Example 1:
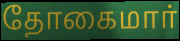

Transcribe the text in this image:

தோகைமார்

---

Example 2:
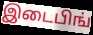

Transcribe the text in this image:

இடைபிங்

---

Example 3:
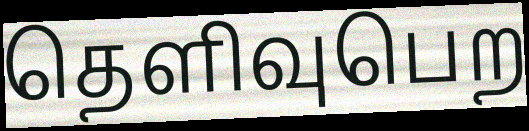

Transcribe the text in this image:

தெளிவுபெற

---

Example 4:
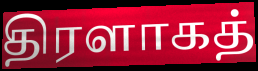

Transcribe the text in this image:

திரளாகத்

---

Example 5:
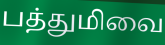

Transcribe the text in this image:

பத்துமிவை